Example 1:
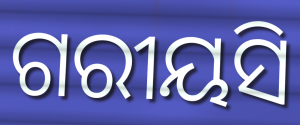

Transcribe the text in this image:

ଗରୀୟସି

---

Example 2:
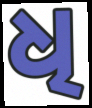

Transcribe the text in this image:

ଧି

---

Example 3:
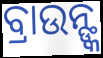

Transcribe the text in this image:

ବ୍ରାଉନ୍ଙ୍କ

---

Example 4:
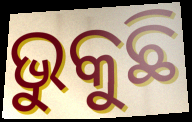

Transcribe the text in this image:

ଭୁକୁଛି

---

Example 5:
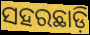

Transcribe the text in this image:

ସହରଛାଡ଼ି